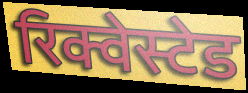
रिक्वेस्टेड